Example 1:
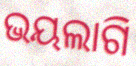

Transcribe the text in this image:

ଭୟଲାଗି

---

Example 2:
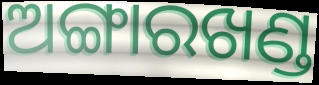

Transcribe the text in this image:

ଅଙ୍ଗାରଖଣ୍ଡ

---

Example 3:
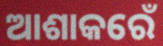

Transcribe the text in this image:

ଆଶାକରେଁ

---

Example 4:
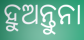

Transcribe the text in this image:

ହୁଅନ୍ତୁନା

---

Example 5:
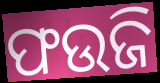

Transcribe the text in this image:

ଫଉଜି